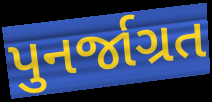
પુનર્જાગ્રત